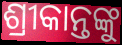
ଶ୍ରୀକାନ୍ତଙ୍କୁ